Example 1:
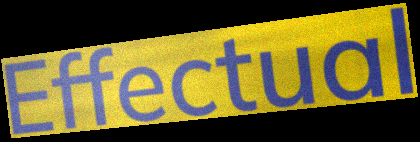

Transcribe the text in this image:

Effectual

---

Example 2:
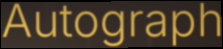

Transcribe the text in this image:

Autograph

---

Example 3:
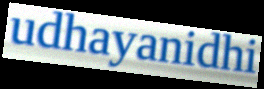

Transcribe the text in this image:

udhayanidhi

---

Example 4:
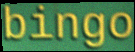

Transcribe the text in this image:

bingo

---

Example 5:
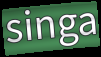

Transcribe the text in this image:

singa